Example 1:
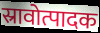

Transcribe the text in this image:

स्रावोत्पादक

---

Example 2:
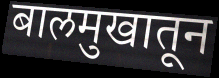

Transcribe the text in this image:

बालमुखातून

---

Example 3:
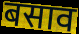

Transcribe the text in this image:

बसाव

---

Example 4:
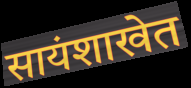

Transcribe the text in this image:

सायंशाखेत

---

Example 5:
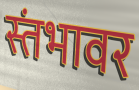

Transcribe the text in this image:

स्तंभावर